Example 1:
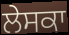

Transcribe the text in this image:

ਲੇਸਕਾ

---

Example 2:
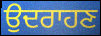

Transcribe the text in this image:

ਉਦਰਾਹਣ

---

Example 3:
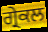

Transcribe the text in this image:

ਗ੍ਰੇਕਲ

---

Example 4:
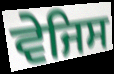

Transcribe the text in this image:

ਵੇਜਿਸ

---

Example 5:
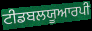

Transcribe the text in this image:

ਟੀਡਬਲਯੂਆਰਪੀ